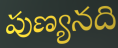
పుణ్యనది